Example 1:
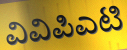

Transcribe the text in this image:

ವಿವಿಪಿಎಟಿ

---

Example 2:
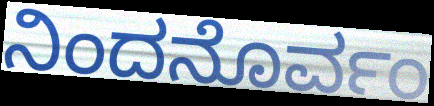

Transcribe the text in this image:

ನಿಂದನೊರ್ವಂ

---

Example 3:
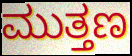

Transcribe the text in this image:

ಮುತ್ತಣ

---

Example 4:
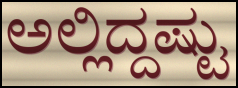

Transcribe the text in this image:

ಅಲ್ಲಿದ್ದಷ್ಟು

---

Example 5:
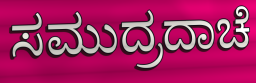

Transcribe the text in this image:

ಸಮುದ್ರದಾಚೆ